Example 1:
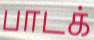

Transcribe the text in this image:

பாடக்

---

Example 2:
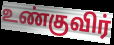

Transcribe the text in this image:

உண்குவிர்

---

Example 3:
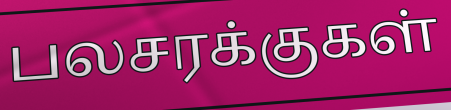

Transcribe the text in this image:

பலசரக்குகள்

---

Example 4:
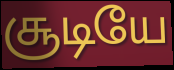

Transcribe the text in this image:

சூடியே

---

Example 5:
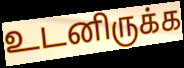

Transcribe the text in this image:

உடனிருக்க